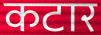
कटार